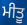
ਮੀਤੂ